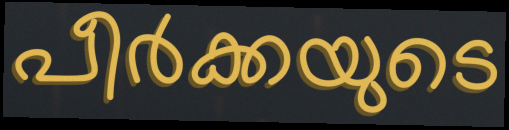
പീർക്കയുടെ